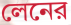
লেনের